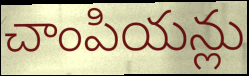
చాంపియన్లు